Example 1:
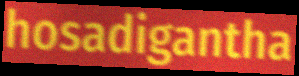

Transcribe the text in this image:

hosadigantha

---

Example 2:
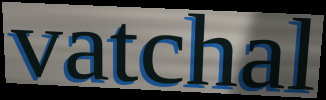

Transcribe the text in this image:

vatchal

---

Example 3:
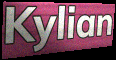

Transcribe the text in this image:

Kylian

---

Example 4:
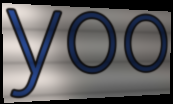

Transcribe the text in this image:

yoo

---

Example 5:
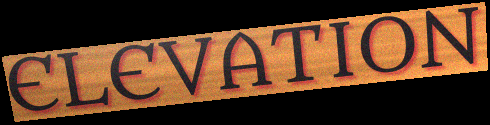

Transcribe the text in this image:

ELEVATION